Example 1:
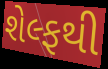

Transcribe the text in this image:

શેલ્ફથી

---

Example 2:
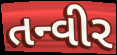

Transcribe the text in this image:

તન્વીર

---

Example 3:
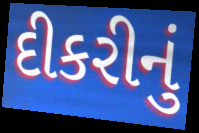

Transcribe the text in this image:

દીકરીનું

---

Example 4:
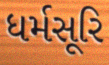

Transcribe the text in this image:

ધર્મસૂરિ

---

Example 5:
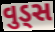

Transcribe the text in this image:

વુડ્સ